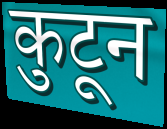
कुटून